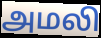
அமலி